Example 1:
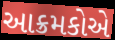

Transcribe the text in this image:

આક્રમકોએ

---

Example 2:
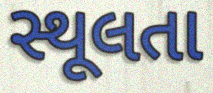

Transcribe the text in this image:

સ્થૂલતા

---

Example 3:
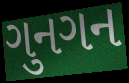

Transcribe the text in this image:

ગુનગન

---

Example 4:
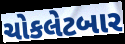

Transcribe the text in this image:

ચોકલેટબાર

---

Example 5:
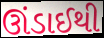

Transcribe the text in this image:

ઊંડાઈથી